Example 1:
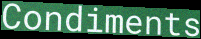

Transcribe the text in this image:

Condiments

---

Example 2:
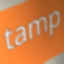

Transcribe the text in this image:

tamp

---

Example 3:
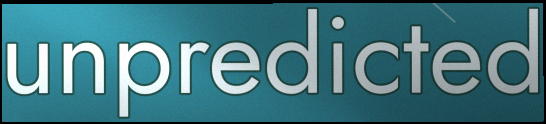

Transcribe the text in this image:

unpredicted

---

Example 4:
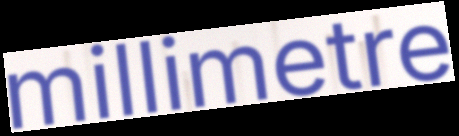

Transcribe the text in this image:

millimetre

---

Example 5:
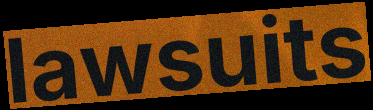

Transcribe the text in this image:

lawsuits